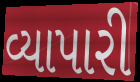
વ્યાપારી